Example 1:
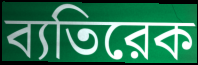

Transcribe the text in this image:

ব্যতিরেক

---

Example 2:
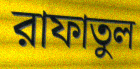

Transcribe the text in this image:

রাফাতুল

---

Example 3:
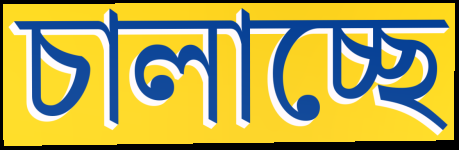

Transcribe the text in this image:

চালাচ্ছে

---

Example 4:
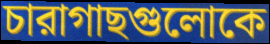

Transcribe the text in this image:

চারাগাছগুলোকে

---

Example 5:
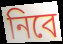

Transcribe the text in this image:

নিবে